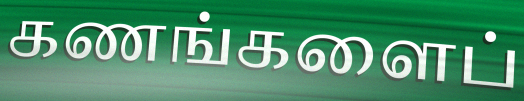
கணங்களைப்